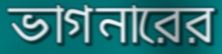
ভাগনারের